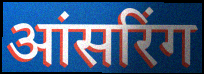
आंसरिंग